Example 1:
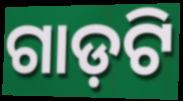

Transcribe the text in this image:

ଗାଡ଼ଟି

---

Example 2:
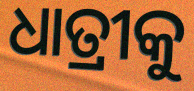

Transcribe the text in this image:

ଧାତ୍ରୀକୁ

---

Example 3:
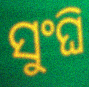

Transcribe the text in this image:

ସୁଂଘି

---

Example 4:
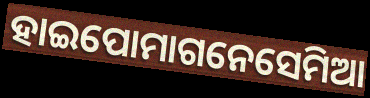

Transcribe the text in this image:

ହାଇପୋମାଗନେସେମିଆ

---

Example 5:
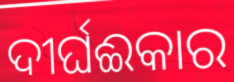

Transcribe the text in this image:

ଦୀର୍ଘଈକାର